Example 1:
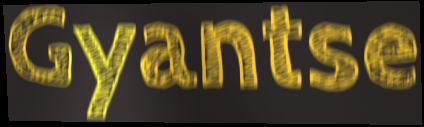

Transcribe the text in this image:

Gyantse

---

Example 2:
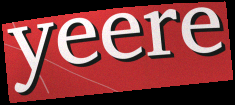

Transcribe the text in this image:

yeere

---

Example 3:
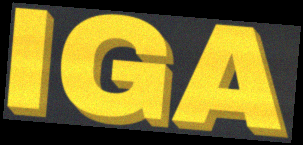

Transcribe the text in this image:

IGA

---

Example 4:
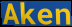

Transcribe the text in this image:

Aken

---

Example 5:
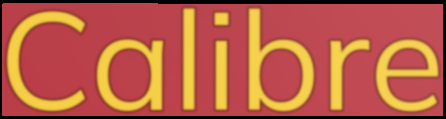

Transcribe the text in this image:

Calibre